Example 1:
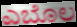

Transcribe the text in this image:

ಎಬೊಲ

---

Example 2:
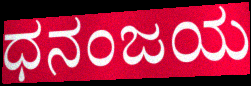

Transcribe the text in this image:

ಧನಂಜಯ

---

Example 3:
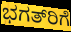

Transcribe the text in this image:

ಭಗತ್‍ರಿಗೆ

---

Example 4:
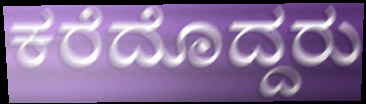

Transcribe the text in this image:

ಕರೆದೊದ್ದರು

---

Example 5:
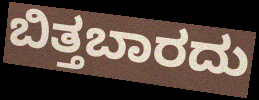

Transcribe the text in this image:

ಬಿತ್ತಬಾರದು